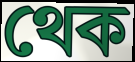
থেক